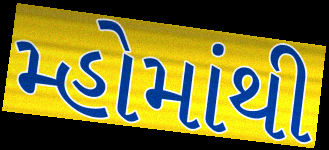
મ્હોમાંથી